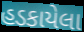
હડકાયેલા